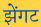
झेंगट